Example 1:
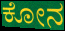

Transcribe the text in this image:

ಕೋನ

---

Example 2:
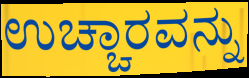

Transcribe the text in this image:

ಉಚ್ಚಾರವನ್ನು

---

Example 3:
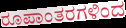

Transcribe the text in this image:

ರೂಪಾಂತರಗಳಿಂದ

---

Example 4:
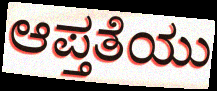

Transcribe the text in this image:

ಆಪ್ತತೆಯು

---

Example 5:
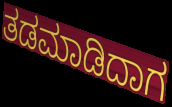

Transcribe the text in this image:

ತಡಮಾಡಿದಾಗ